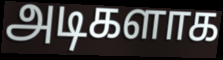
அடிகளாக